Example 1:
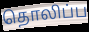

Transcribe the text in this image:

தொலிப்ப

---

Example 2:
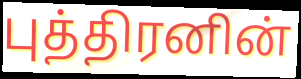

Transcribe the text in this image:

புத்திரனின்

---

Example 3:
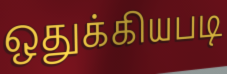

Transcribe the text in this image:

ஒதுக்கியபடி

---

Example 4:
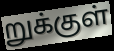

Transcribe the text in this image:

றுக்குள்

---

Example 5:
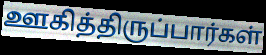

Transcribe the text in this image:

ஊகித்திருப்பார்கள்